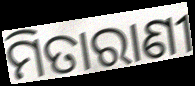
ମିତାରାଣୀ